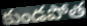
కుండపోత